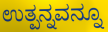
ಉತ್ಪನ್ನವನ್ನೂ